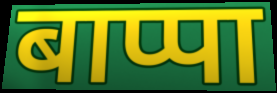
बाप्पा